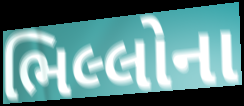
ભિલ્લોના